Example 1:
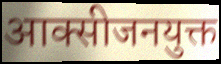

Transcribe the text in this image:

आक्सीजनयुक्त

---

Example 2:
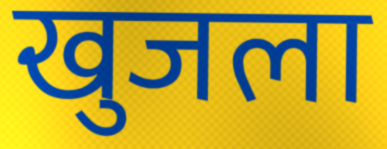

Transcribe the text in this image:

खुजला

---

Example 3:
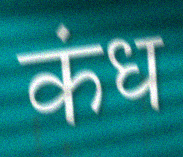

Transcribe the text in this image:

कंध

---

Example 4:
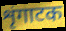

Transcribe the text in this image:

शृंगाटक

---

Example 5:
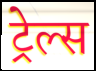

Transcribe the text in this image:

ट्रेल्स